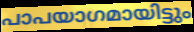
പാപയാഗമായിട്ടും